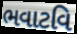
ભવાટવિ